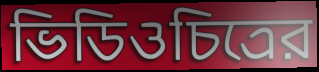
ভিডিওচিত্রের